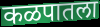
कळपातला